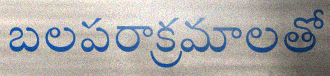
బలపరాక్రమాలతో